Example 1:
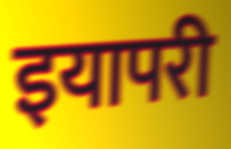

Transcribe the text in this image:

इयापरी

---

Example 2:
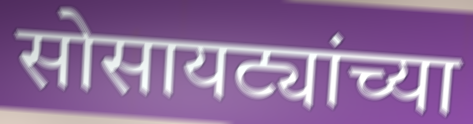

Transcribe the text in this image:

सोसायट्यांच्या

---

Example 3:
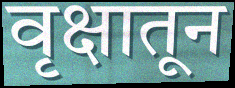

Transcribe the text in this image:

वृक्षातून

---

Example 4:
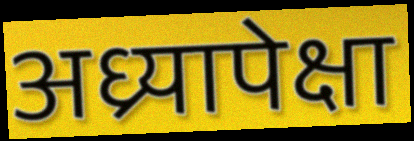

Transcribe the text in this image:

अध्र्यापेक्षा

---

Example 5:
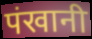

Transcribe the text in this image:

पंखानी